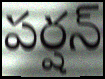
పర్షన్